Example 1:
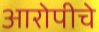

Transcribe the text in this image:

आरोपीचे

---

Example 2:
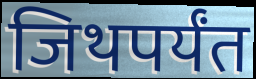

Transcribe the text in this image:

जिथपर्यंत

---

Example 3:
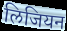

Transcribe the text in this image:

लिजियन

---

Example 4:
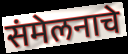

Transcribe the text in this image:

संमेलनाचे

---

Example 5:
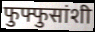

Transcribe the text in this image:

फुफ्फुसांशी